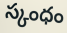
స్కంధం